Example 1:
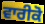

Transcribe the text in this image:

ਵਾਰੀਕੋ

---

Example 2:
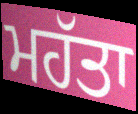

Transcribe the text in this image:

ਮਹੱਤਾ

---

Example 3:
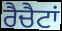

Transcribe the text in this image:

ਰੈਚੈਟਾਂ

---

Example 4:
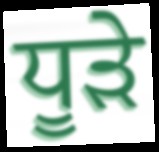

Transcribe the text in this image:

ਧੂੜੇ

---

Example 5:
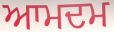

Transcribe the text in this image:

ਆਮਦਮ